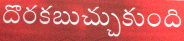
దొరకబుచ్చుకుంది